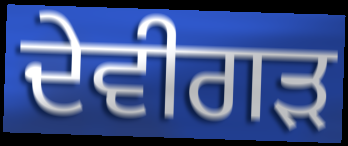
ਦੇਵੀਗੜ